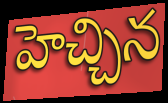
హెచ్చిన